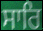
ਸਾਰਿ